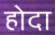
होदा